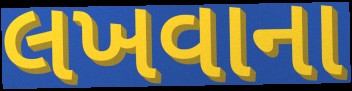
લખવાના